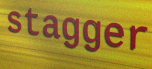
stagger